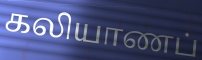
கலியாணப்